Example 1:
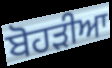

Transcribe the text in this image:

ਬੋਹੜੀਆ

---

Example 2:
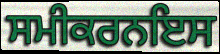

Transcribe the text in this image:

ਸਮੀਕਰਨਇਸ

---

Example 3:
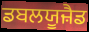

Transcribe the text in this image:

ਡਬਲਯੂਜ਼ੈਡ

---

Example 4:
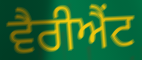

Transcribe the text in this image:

ਵੈਰੀਐਂਟ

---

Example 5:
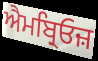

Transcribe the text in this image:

ਐਮਬ੍ਰਿਓਜ਼